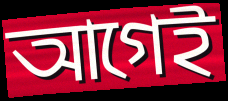
আগেই